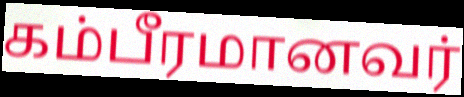
கம்பீரமானவர்